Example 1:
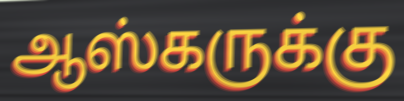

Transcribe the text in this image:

ஆஸ்கருக்கு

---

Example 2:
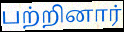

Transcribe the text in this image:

பற்றினார்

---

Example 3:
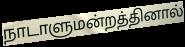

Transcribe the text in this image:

நாடாளுமன்றத்தினால்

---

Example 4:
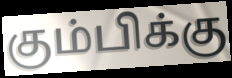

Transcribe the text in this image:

கும்பிக்கு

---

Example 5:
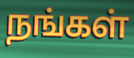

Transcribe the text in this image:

நங்கள்